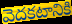
వెదకటానికి